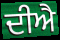
ਦੀਐ